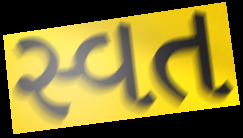
સ્વત